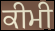
ਕੀਮੀ